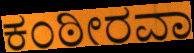
ಕಂಠೀರವಾ